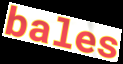
bales